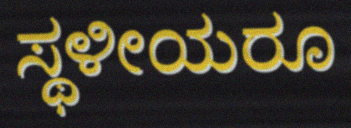
ಸ್ಥಳೀಯರೂ